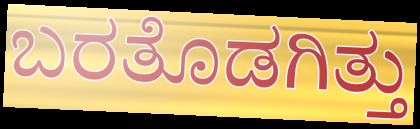
ಬರತೊಡಗಿತ್ತು